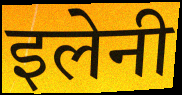
इलेनी